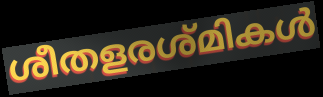
ശീതളരശ്മികൾ